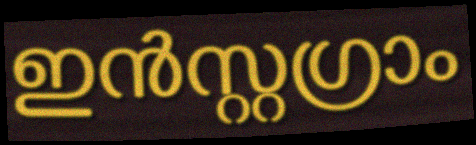
ഇൻസ്റ്റഗ്രാം